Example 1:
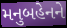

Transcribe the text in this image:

મનુબહેનને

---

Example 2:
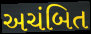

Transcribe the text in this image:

અચંબિત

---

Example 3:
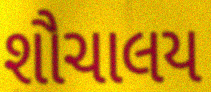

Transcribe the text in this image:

શૌચાલય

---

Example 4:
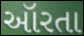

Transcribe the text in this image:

ઑરતા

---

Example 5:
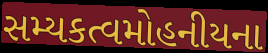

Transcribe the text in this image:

સમ્યકત્વમોહનીયના